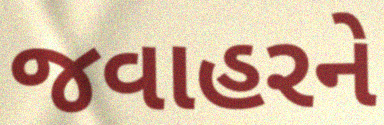
જવાહરને